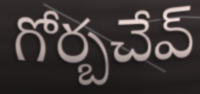
గోర్బచేవ్